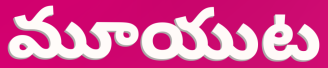
మూయుట